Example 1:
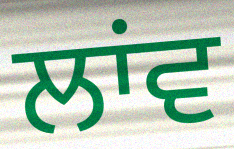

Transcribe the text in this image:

ਲਾਂਵ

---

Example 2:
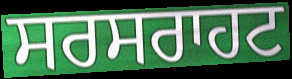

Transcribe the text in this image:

ਸਰਸਰਾਹਟ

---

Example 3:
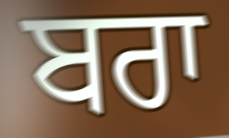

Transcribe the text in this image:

ਬਰਾ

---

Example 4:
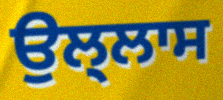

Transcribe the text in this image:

ਉਲ੍ਲਾਸ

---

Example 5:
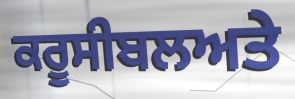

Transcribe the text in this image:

ਕਰੂਸੀਬਲਅਤੇ